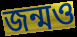
জন্মও